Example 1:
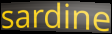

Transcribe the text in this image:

sardine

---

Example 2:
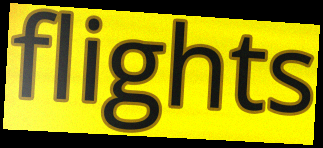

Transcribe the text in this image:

flights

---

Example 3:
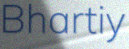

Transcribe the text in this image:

Bhartiy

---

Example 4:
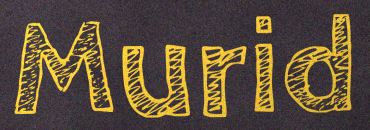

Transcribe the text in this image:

Murid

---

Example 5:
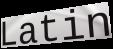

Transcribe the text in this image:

Latin